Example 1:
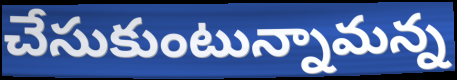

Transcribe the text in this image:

చేసుకుంటున్నామన్న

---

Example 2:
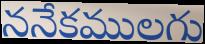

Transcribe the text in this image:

ననేకములగు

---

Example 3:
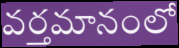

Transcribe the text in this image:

వర్తమానంలో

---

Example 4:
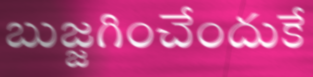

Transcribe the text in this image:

బుజ్జగించేందుకే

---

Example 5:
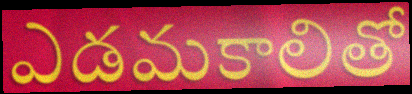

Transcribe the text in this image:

ఎడమకాలితో